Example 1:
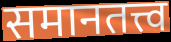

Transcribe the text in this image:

समानतत्त्व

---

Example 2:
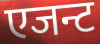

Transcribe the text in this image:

एजन्ट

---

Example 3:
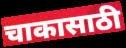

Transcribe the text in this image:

चाकासाठी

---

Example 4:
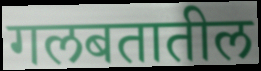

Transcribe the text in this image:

गलबतातील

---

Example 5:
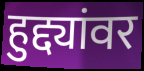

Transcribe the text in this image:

हुद्द्यांवर